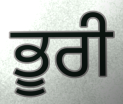
ਭੂਰੀ